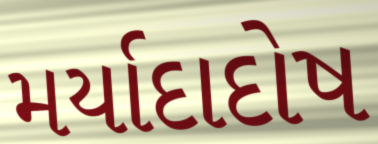
મર્યાદાદોષ